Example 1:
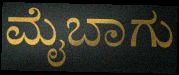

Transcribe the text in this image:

ಮೈಬಾಗು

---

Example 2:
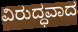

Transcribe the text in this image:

ವಿರುದ್ಧವಾದ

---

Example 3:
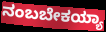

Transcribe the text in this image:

ನಂಬಬೇಕಯ್ಯಾ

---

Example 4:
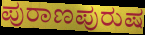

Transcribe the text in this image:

ಪುರಾಣಪುರುಷ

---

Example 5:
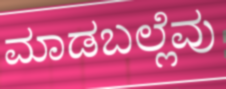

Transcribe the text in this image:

ಮಾಡಬಲ್ಲೆವು